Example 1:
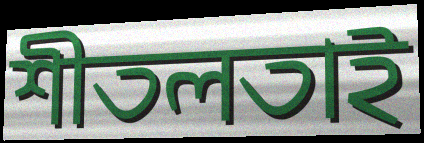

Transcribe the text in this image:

শীতলতাই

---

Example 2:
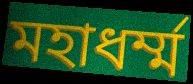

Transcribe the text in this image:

মহাধর্ম্ম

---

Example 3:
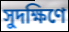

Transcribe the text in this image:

সুদক্ষিণে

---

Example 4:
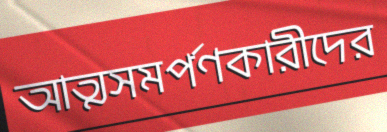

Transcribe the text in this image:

আত্মসমর্পণকারীদের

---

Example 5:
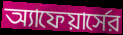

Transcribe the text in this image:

অ্যাফেয়ার্সের